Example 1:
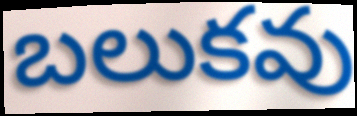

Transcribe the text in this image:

బలుకవు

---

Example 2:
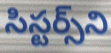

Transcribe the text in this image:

సిస్టర్స్‌ని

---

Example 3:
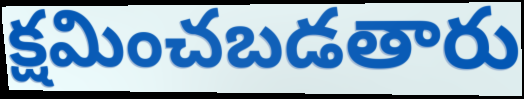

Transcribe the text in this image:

క్షమించబడతారు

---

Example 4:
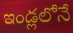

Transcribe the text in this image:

ఇండ్లలోనే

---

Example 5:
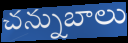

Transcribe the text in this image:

చన్నుబాలు